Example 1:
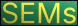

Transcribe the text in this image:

SEMs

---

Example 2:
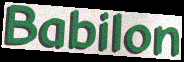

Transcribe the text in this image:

Babilon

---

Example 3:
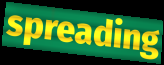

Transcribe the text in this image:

spreading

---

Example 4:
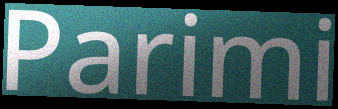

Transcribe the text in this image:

Parimi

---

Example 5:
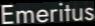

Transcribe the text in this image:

Emeritus